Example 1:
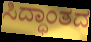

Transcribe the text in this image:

ಸಿದ್ಧಾಂತದ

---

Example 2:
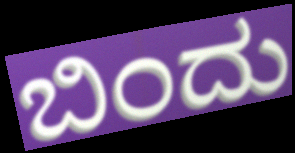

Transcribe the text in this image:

ಬಿಂದು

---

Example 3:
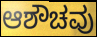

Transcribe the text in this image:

ಆಶೌಚವು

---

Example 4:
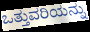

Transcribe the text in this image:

ಒತ್ತುವರಿಯನ್ನು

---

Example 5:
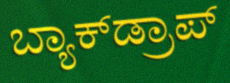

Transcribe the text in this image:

ಬ್ಯಾಕ್‌ಡ್ರಾಪ್